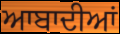
ਆਬਾਦੀਆਂ